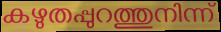
കഴുതപ്പുറത്തുനിന്ന്